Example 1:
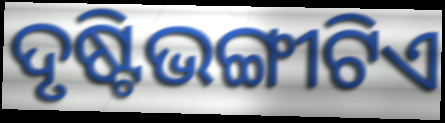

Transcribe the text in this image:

ଦୃଷ୍ଟିଭଙ୍ଗୀଟିଏ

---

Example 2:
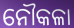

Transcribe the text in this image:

ନୌକଳା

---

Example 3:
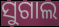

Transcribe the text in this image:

ସୁଗାଲ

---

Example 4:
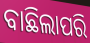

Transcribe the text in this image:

ବାଛିଲାପରି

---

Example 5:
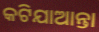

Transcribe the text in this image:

କଟିଯାଆନ୍ତା